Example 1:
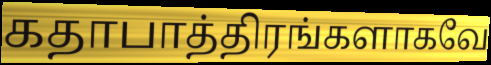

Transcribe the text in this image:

கதாபாத்திரங்களாகவே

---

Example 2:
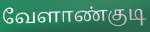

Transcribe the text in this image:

வேளாண்குடி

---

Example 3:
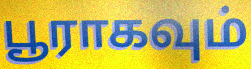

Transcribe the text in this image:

பூராகவும்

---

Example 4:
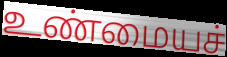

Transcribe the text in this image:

உண்மையச்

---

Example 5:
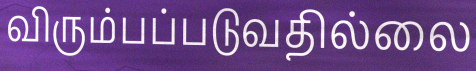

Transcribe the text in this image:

விரும்பப்படுவதில்லை